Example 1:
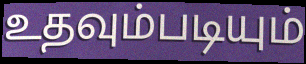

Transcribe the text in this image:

உதவும்படியும்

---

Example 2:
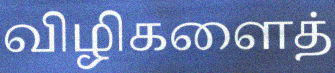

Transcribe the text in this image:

விழிகளைத்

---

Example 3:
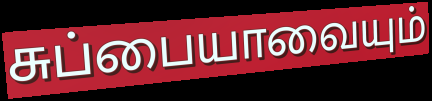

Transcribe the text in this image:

சுப்பையாவையும்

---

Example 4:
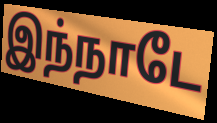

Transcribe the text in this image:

இந்நாடே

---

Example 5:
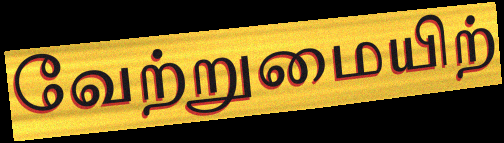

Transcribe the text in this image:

வேற்றுமையிற்